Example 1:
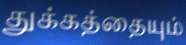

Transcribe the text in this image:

துக்கத்தையும்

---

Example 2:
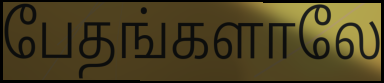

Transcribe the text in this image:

பேதங்களாலே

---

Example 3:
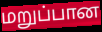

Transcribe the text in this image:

மறுப்பான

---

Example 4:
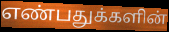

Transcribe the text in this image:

எண்பதுக்களின்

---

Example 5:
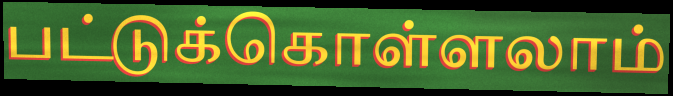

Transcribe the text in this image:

பட்டுக்கொள்ளலாம்